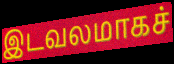
இடவலமாகச்